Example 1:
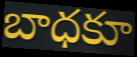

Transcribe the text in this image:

బాధకూ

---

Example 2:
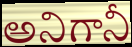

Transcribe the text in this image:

అనిగానీ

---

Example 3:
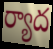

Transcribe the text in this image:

ర్యాద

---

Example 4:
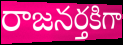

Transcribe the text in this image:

రాజనర్తకిగా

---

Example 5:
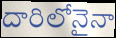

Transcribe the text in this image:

దారిలోనైనా